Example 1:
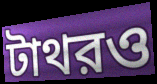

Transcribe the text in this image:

টাথরও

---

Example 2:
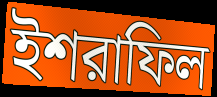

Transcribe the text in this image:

ইশরাফিল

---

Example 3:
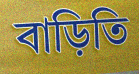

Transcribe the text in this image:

বাড়িতি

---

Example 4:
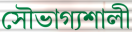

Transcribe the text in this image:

সৌভাগ্যশালী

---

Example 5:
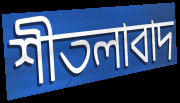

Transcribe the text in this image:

শীতলাবাদ